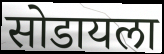
सोडायला